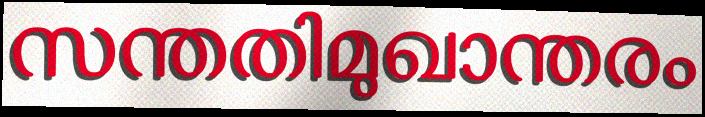
സന്തതിമുഖാന്തരം